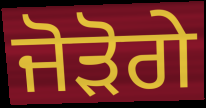
ਜੋੜੋਗੇ